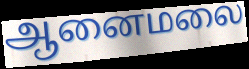
ஆனைமலை